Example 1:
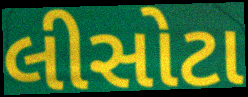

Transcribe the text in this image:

લીસોટા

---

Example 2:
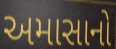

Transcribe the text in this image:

અમાસાનો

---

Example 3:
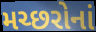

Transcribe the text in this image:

મચ્છરોનાં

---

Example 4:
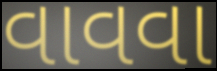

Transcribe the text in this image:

વાવવા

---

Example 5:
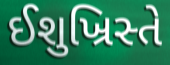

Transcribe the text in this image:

ઈશુખ્રિસ્તે